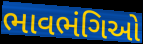
ભાવભંગિઓ